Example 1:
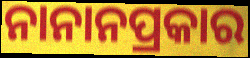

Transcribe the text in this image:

ନାନାନପ୍ରକାର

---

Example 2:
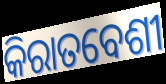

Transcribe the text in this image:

କିରାତବେଶୀ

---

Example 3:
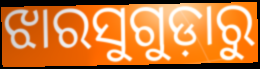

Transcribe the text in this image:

ଝାରସୁଗୁଡ଼ାରୁ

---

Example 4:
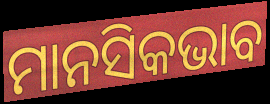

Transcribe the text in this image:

ମାନସିକଭାବ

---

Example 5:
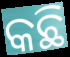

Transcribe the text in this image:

କଛି